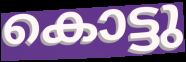
കൊട്ടു